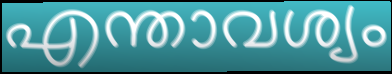
എന്താവശ്യം